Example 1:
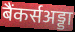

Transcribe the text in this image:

बैंकर्सअड्डा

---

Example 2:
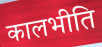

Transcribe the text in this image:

कालभीति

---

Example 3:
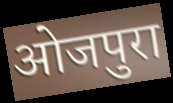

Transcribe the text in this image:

ओजपुरा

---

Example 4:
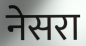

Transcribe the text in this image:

नेसरा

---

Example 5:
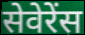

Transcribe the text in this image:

सेवेरेंस